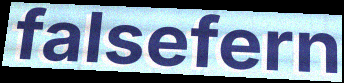
falsefern